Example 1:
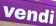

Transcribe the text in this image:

vendi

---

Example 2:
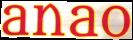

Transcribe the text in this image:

anao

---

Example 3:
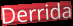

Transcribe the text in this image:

Derrida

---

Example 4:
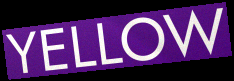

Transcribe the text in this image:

YELLOW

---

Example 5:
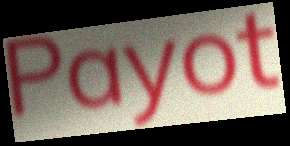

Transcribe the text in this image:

Payot